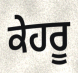
ਕੇਹਰੂ